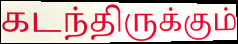
கடந்திருக்கும்